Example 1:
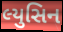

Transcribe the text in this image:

લ્યુસિન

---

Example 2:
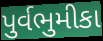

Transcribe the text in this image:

પુર્વભુમીકા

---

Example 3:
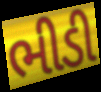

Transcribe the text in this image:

ભીડી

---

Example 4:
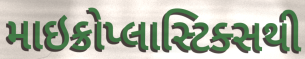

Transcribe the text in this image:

માઇક્રોપ્લાસ્ટિક્સથી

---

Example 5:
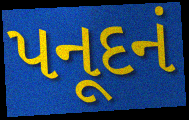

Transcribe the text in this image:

પનૂદનં